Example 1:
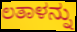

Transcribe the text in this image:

ಲತಾಳನ್ನು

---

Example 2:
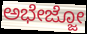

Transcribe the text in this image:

ಅಭೇಜ್ಜೋ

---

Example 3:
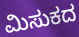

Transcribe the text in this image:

ಮಿಸುಕದ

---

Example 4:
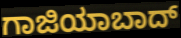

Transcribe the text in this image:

ಗಾಜಿಯಾಬಾದ್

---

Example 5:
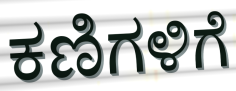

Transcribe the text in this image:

ಕಣಿಗಳಿಗೆ